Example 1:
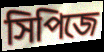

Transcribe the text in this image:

সিপিজে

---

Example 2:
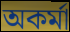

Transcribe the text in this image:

অকর্মা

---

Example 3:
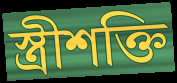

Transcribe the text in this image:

স্ত্রীশক্তি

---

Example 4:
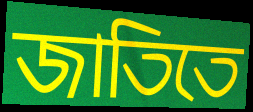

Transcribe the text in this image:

জাতিতে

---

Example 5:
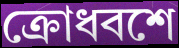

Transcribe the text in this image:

ক্রোধবশে